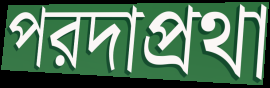
পরদাপ্রথা